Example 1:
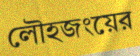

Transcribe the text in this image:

লৌহজংয়ের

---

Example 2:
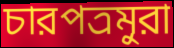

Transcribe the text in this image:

চারপত্রমুরা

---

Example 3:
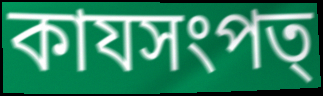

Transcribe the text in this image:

কাযসংপত্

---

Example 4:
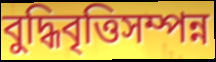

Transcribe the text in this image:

বুদ্ধিবৃত্তিসম্পন্ন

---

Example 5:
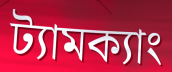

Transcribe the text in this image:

ট্যামক্যাং